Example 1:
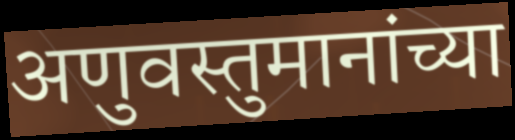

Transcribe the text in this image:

अणुवस्तुमानांच्या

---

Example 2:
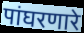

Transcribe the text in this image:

पांघरणारे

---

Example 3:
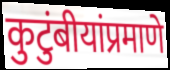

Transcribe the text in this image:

कुटुंबीयांप्रमाणे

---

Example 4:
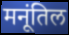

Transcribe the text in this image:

मनूंतिल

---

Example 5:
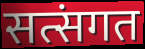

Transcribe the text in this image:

सत्संगत